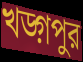
খড়্গপুর